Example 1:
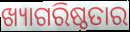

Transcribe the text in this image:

ଖ୍ୟାଗରିଷ୍ଠତାର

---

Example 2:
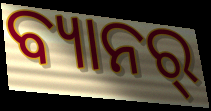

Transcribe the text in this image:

ବ୍ୟାନର୍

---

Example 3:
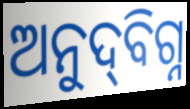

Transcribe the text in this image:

ଅନୁଦ୍‌ବିଗ୍ନ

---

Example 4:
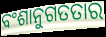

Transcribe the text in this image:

ବଂଶାନୁଗତତାର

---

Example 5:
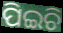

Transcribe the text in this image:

ପିଇଚି